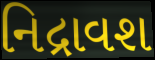
નિદ્રાવશ